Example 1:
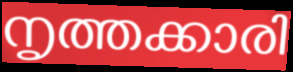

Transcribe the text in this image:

നൃത്തക്കാരി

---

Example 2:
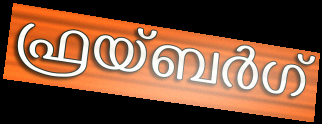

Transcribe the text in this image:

ഫ്രയ്ബർഗ്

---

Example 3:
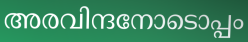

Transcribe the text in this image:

അരവിന്ദനോടൊപ്പം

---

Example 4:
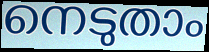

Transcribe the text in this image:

നെടുതാം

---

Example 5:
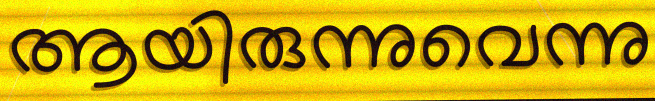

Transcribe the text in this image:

ആയിരുന്നുവെന്നു